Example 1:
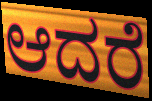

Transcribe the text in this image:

ಆದರೆ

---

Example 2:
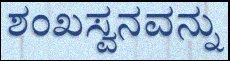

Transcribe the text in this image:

ಶಂಖಸ್ವನವನ್ನು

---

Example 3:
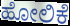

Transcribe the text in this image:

ಹೋಲಿಕೆ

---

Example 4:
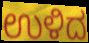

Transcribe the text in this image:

ಉಳಿದ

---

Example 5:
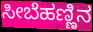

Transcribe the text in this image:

ಸೀಬೆಹಣ್ಣಿನ